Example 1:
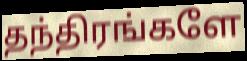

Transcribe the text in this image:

தந்திரங்களே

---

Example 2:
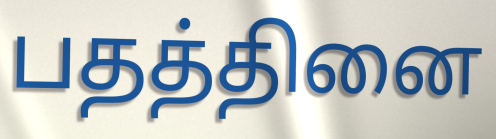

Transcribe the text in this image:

பதத்தினை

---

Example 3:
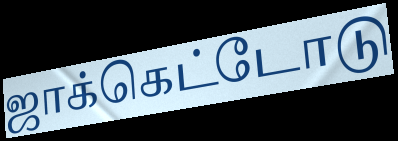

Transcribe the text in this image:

ஜாக்கெட்டோடு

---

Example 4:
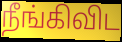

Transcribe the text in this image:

நீங்கிவிட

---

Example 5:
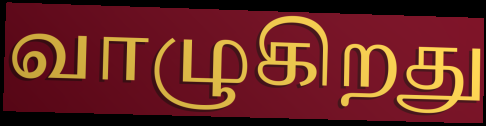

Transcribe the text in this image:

வாழுகிறது